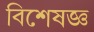
বিশেষজ্ঞ